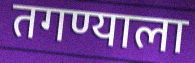
तगण्याला